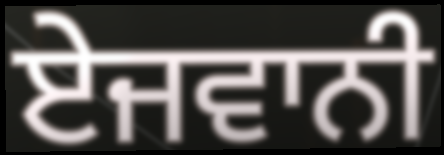
ਏਜਵਾਨੀ